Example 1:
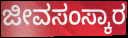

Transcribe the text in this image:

ಜೀವಸಂಸ್ಕಾರ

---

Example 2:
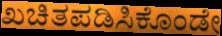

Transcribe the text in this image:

ಖಚಿತಪಡಿಸಿಕೊಂಡೇ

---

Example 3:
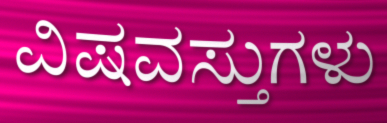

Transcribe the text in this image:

ವಿಷವಸ್ತುಗಳು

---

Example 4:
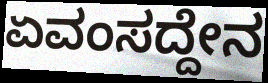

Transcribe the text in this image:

ಏವಂಸದ್ದೇನ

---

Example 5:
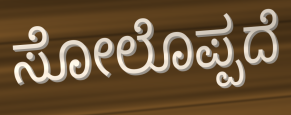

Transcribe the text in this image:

ಸೋಲೊಪ್ಪದೆ